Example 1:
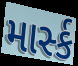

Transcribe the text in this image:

માર્સ્ક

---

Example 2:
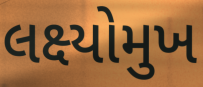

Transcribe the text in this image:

લક્ષ્યોમુખ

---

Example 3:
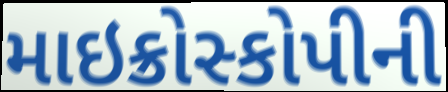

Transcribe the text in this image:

માઇક્રોસ્કોપીની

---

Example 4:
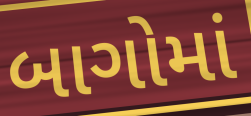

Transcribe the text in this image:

બાગોમાં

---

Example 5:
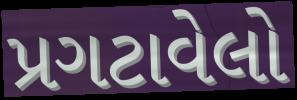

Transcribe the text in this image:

પ્રગટાવેલો